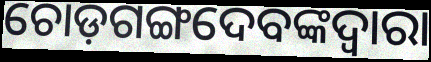
ଚୋଡ଼ଗଙ୍ଗଦେବଙ୍କଦ୍ୱାରା